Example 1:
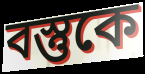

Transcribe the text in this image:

বস্তুকে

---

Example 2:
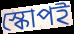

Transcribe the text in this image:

স্কোপই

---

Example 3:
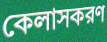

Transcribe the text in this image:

কেলাসকরণ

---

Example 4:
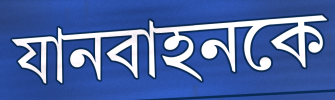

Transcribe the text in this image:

যানবাহনকে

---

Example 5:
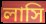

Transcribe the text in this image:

লাসি